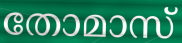
തോമാസ്